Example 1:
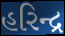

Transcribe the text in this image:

હરિન્દ્ર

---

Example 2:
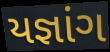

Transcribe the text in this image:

યજ્ઞાંગ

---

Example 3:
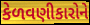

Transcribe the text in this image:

કેળવણીકારોને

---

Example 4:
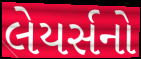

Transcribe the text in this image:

લેયર્સનો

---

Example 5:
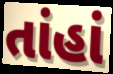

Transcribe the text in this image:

તાંહાં